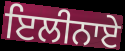
ਇਲੀਨਾਏ